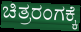
ಚಿತ್ರರಂಗಕ್ಕೆ